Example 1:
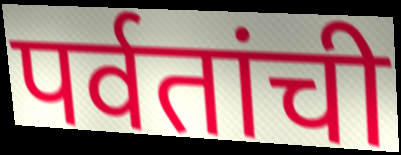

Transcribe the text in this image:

पर्वतांची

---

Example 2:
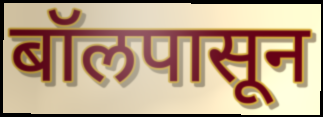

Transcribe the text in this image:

बॉलपासून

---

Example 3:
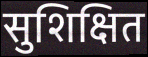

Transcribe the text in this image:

सुशिक्षित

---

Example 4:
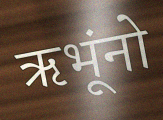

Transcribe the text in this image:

ऋभूंनो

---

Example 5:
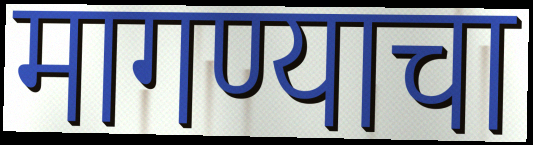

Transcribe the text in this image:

मागण्याचा